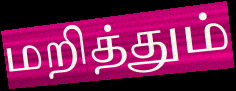
மறித்தும்